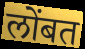
लोंबत